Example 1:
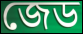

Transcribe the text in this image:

জেড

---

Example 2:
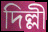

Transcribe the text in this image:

দিল্লী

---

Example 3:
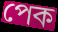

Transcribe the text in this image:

পেক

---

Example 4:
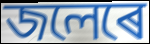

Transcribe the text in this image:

জলেৰে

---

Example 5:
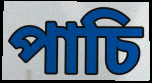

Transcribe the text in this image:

পাচি